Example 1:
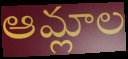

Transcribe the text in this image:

ఆమ్లాల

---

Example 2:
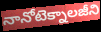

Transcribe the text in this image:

నానోటెక్నాలజీని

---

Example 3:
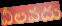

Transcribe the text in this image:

వీలవదు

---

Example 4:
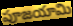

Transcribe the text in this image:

పూజయామి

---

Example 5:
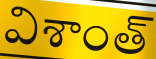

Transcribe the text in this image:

విశాంత్